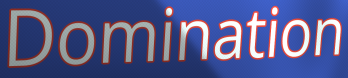
Domination